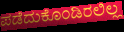
ಪಡೆದುಕೊಂಡಿರಲಿಲ್ಲ